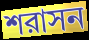
শরাসন